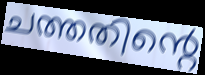
ചത്തതിന്റെ